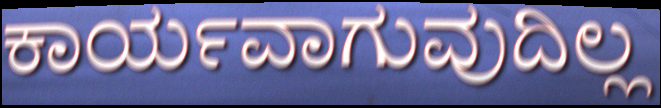
ಕಾರ್ಯವಾಗುವುದಿಲ್ಲ